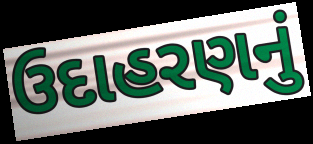
ઉદાહરણનું